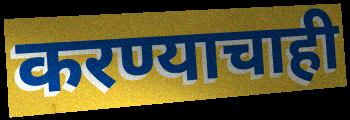
करण्याचाही